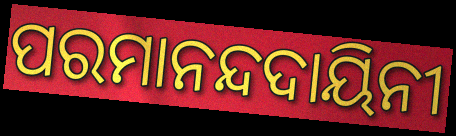
ପରମାନନ୍ଦଦାୟିନୀ